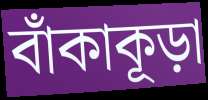
বাঁকাকূড়া